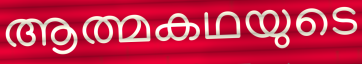
ആത്മകഥയുടെ